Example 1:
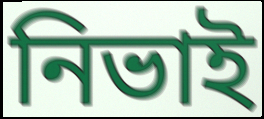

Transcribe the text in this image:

নিভাই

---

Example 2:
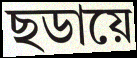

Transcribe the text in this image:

ছডায়ে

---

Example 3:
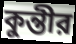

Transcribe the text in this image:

কুন্তীর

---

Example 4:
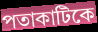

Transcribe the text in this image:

পতাকাটিকে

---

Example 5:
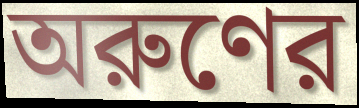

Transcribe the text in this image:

অরুণের